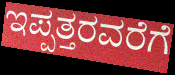
ಇಪ್ಪತ್ತರವರೆಗೆ